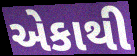
એકાથી